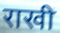
राखी